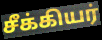
சீக்கியர்